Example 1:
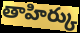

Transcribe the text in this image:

తాహిర్కు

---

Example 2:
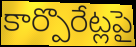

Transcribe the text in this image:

కార్పొరేట్లపై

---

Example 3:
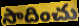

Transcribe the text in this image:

సాదించు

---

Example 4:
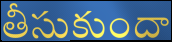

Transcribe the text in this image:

తీసుకుందా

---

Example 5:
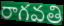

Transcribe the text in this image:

రాగవతి